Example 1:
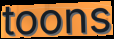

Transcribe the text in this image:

toons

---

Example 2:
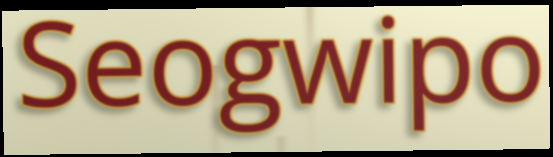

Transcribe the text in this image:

Seogwipo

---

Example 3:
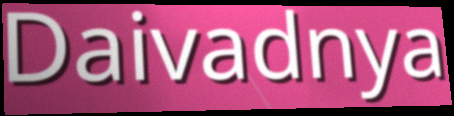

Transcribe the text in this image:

Daivadnya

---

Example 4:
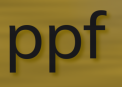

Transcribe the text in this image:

ppf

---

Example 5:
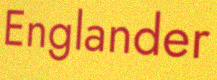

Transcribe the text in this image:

Englander